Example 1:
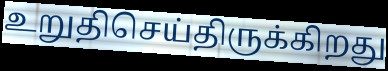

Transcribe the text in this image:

உறுதிசெய்திருக்கிறது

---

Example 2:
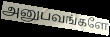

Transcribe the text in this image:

அனுபவங்களே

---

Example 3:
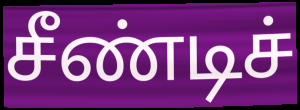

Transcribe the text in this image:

சீண்டிச்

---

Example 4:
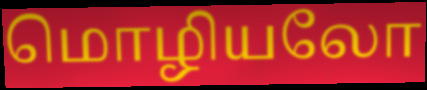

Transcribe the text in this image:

மொழியலோ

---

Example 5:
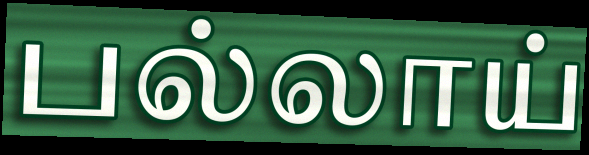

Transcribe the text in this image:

பல்லாய்